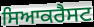
ਸਿਆਕਰੈਸਟ